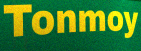
Tonmoy